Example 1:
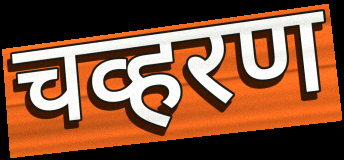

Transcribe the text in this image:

चव्हरण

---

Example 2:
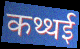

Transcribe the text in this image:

कथ्थई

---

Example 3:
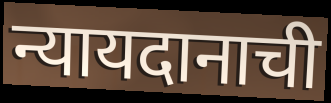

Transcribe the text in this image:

न्यायदानाची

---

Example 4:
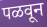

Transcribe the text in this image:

पळवून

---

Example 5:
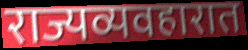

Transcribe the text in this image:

राज्यव्यवहारात